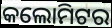
କଲୋମିଟର